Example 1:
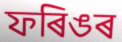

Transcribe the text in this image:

ফৰিঙৰ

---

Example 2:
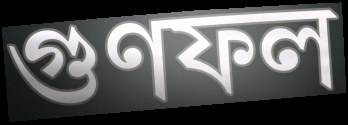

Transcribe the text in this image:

গুণফল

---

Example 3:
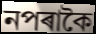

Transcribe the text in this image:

নপৰাকৈ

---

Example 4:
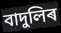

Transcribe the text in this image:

বাদুলিৰ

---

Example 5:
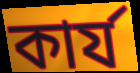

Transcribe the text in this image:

কাৰ্য